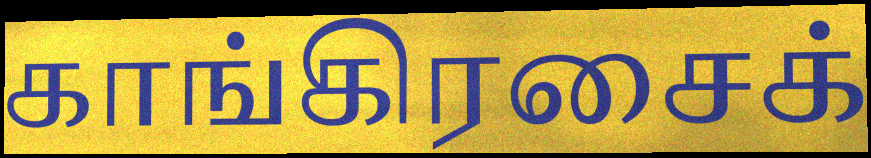
காங்கிரசைக்